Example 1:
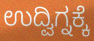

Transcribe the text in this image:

ಉದ್ವಿಗ್ನಕ್ಕೆ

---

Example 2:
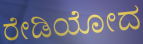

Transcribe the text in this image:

ರೇಡಿಯೋದ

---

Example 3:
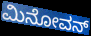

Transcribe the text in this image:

ಮಿನೋವನ್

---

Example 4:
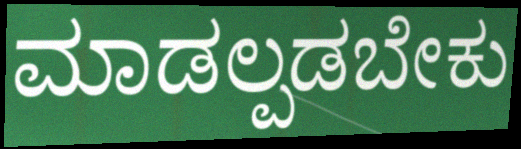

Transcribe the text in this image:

ಮಾಡಲ್ಪಡಬೇಕು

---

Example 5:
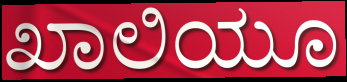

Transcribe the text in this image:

ಖಾಲಿಯೂ